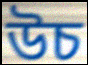
উচ